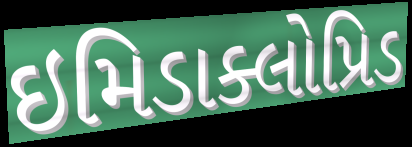
ઇમિડાક્લોપ્રિડ